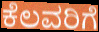
ಕೆಲವರಿಗೆ